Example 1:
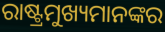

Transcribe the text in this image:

ରାଷ୍ଟ୍ରମୁଖ୍ୟମାନଙ୍କର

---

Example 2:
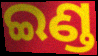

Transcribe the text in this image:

ଇଣ୍ଡ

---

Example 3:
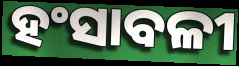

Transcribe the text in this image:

ହଂସାବଳୀ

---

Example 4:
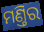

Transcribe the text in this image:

ମଣ୍ତିର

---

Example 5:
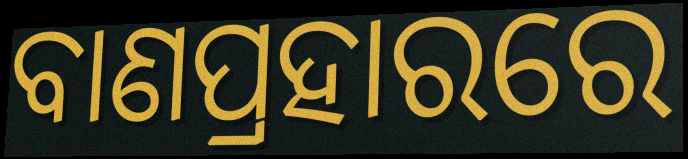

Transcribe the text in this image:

ବାଣପ୍ରହାରରେ